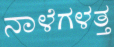
ನಾಳೆಗಳತ್ತ